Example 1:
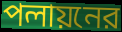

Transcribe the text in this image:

পলায়নের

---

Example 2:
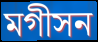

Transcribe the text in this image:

মগীসন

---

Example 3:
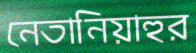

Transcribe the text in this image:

নেতানিয়াহুর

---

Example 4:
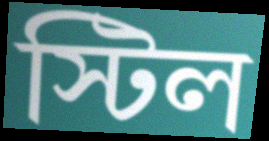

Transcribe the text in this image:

স্টিল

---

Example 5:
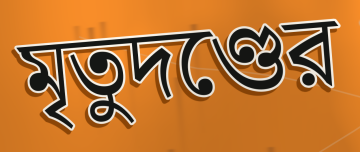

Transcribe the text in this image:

মৃতুদণ্ডের